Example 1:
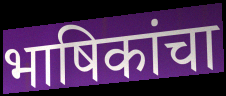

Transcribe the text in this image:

भाषिकांचा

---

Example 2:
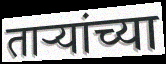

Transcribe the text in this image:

तार्‍यांच्या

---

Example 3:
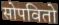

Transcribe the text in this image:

सोपवितो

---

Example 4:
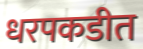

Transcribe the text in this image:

धरपकडीत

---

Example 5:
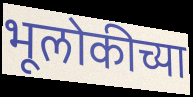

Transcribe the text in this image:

भूलोकीच्या